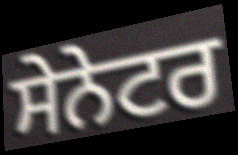
ਸੇਨੇਟਰ